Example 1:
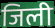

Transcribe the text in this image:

जिली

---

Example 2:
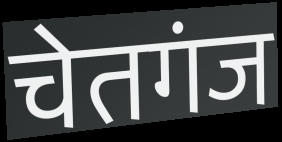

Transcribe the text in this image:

चेतगंज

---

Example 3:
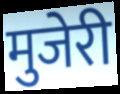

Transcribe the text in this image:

मुजेरी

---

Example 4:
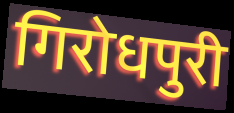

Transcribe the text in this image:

गिरोधपुरी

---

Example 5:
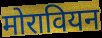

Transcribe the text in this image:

मोरावियन